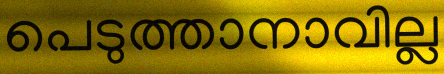
പെടുത്താനാവില്ല